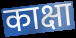
काक्षा